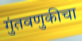
गुंतवणुकीचा